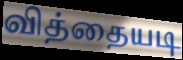
வித்தையடி